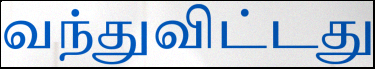
வந்துவிட்டது